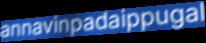
annavinpadaippugal